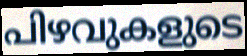
പിഴവുകളുടെ